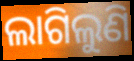
ଲାଗିଲୁଣି